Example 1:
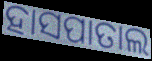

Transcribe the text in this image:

ହାସପାତାଲ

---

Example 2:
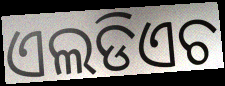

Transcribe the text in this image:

ଏଲଡିଏଚ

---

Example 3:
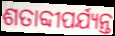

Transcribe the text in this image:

ଶତାବ୍ଦୀପର୍ଯ୍ୟନ୍ତ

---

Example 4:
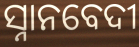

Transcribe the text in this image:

ସ୍ନାନବେଦୀ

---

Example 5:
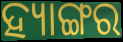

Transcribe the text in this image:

ହ୍ୟାଙ୍ଗର